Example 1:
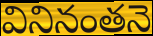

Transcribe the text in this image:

వినినంతనె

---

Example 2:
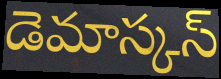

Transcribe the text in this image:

డెమాస్కస్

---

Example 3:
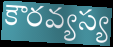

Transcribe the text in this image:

కౌరవ్యస్య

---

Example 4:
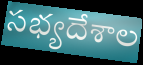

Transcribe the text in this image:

సభ్యదేశాల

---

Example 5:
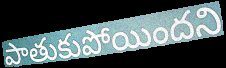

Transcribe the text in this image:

పాతుకుపోయిందని